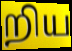
றிய